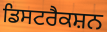
ਡਿਸਟਰੈਕਸ਼ਨ